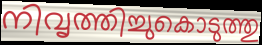
നിവൃത്തിച്ചുകൊടുത്തു